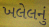
ખલેલનું